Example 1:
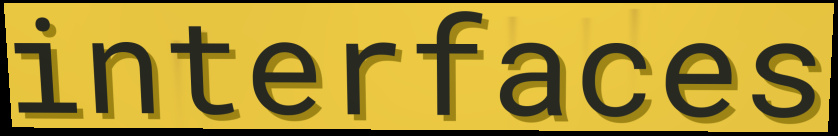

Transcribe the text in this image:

interfaces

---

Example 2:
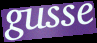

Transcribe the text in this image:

gusse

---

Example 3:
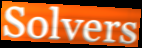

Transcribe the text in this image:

Solvers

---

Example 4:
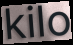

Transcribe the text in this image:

kilo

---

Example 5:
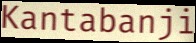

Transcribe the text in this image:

Kantabanji